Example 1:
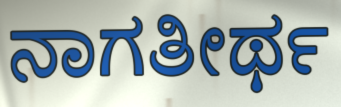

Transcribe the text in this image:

ನಾಗತೀರ್ಥ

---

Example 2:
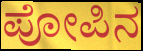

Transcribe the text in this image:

ಪೋಪಿನ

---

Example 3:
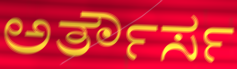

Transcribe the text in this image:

ಅರ್ತೌರ್ಸ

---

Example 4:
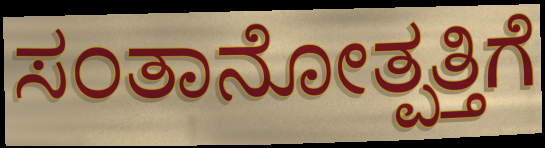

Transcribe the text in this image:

ಸಂತಾನೋತ್ಪತ್ತಿಗೆ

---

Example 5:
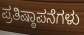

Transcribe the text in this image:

ಪ್ರತಿಷ್ಠಾಪನೆಗಳು